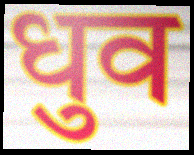
धुव